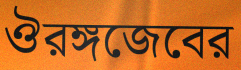
ঔরঙ্গজেবের